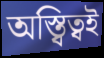
অস্ত্বিত্বই